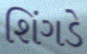
શિંગડે